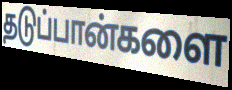
தடுப்பான்களை